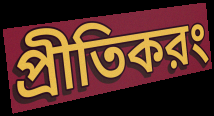
প্রীতিকরং